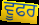
ਵੂਫਰ